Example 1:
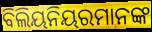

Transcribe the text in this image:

ବିଲିୟନିୟରମାନଙ୍କ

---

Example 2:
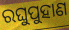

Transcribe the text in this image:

ରଘୁପୁହାଣ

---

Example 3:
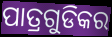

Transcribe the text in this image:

ପାତ୍ରଗୁଡିକର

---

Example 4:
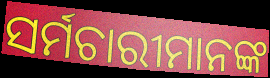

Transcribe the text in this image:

ସର୍ମଚାରୀମାନଙ୍କ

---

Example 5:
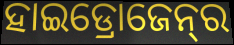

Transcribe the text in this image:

ହାଇଡ୍ରୋଜେନ୍‌ର